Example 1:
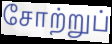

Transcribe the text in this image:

சோற்றுப்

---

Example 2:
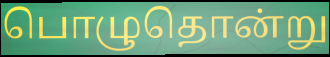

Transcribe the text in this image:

பொழுதொன்று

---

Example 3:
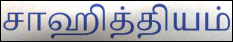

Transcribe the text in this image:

சாஹித்தியம்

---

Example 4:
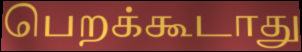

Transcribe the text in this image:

பெறக்கூடாது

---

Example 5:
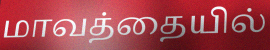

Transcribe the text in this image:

மாவத்தையில்